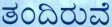
ತಂದಿರುವೆ